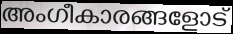
അംഗീകാരങ്ങളോട്